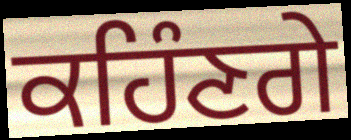
ਕਹਿੰਣਗੇ